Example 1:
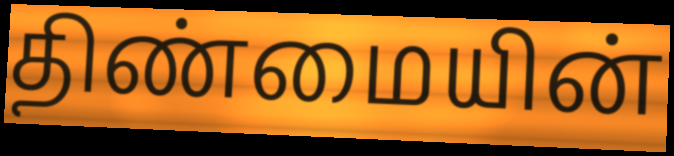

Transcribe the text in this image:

திண்மையின்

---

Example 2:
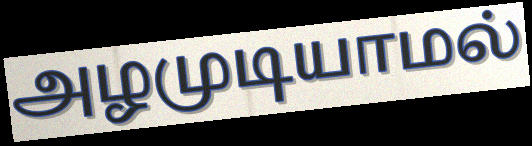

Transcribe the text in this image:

அழமுடியாமல்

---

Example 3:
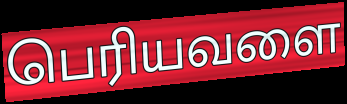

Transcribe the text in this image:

பெரியவளை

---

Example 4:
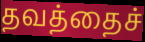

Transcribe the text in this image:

தவத்தைச்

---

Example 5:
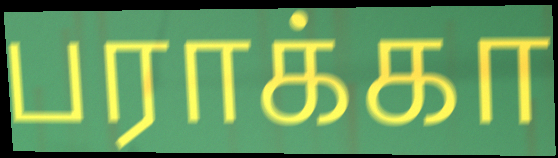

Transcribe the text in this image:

பராக்கா